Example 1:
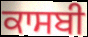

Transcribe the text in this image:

ਕਾਸਬੀ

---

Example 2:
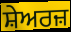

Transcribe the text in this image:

ਸ਼ੇਅਰਜ਼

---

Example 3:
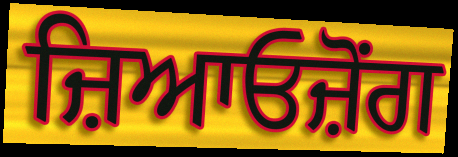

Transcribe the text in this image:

ਜ਼ਿਆਓਜ਼ੋਂਗ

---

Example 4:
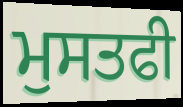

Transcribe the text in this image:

ਮੁਸਤਫੀ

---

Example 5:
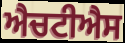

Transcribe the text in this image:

ਐਚਟੀਐਸ